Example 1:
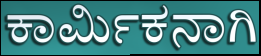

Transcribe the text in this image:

ಕಾರ್ಮಿಕನಾಗಿ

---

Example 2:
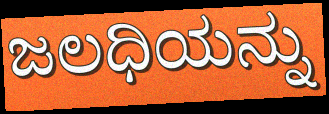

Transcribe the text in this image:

ಜಲಧಿಯನ್ನು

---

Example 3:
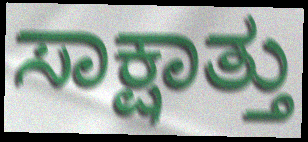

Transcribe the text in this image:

ಸಾಕ್ಷಾತ್ತು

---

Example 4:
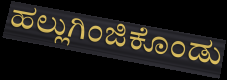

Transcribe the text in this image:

ಹಲ್ಲುಗಿಂಜಿಕೊಂಡು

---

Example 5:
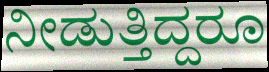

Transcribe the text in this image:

ನೀಡುತ್ತಿದ್ದರೂ